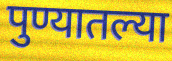
पुण्यातल्या